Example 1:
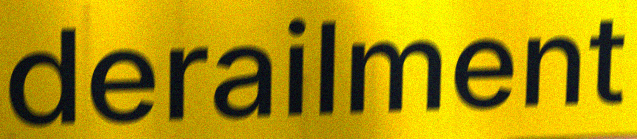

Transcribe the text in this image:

derailment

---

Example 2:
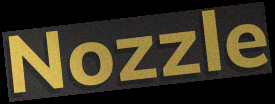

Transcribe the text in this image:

Nozzle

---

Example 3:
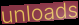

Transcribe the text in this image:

unloads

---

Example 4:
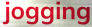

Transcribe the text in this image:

jogging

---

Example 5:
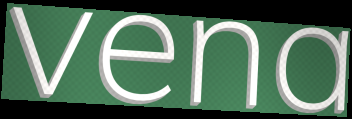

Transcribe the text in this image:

vena